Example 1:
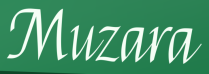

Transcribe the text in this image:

Muzara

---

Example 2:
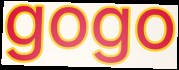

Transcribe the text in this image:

gogo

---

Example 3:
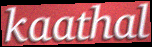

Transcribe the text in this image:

kaathal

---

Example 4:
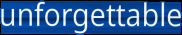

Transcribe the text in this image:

unforgettable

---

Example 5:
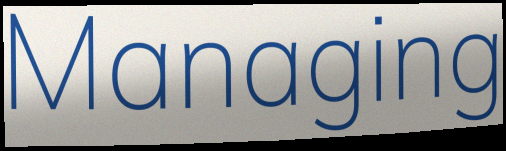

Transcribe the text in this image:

Managing